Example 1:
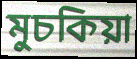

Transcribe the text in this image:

মুচকিয়া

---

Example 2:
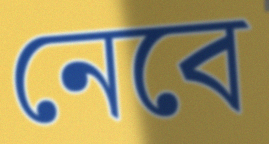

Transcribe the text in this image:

নেবে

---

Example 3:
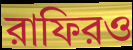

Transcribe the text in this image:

রাফিরও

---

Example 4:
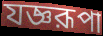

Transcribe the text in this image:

যজ্ঞরূপা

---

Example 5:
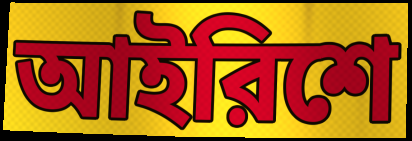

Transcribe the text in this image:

আইরিশে